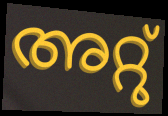
അറ്റു്